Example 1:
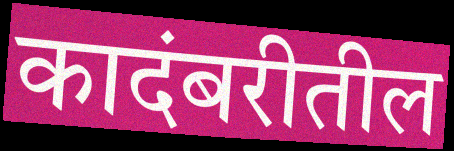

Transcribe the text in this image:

कादंबरीतील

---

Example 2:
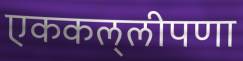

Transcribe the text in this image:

एककल्लीपणा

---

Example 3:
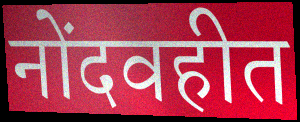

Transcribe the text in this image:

नोंदवहीत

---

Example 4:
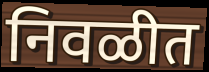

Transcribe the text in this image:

निवळीत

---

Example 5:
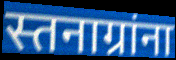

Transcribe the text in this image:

स्तनाग्रांना